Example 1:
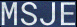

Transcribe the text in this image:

MSJE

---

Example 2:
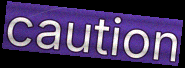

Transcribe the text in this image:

caution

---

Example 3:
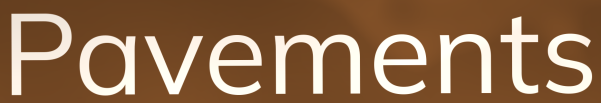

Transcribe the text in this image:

Pavements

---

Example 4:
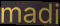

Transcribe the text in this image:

madi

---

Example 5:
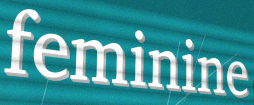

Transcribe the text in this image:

feminine